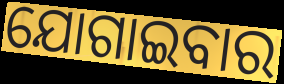
ଯୋଗାଇବାର